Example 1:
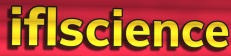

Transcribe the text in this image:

iflscience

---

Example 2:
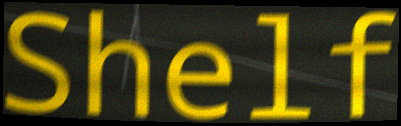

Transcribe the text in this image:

Shelf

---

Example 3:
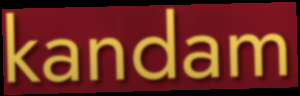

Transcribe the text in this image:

kandam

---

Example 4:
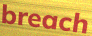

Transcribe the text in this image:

breach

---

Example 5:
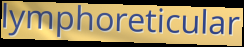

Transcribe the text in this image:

lymphoreticular